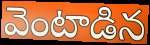
వెంటాడిన